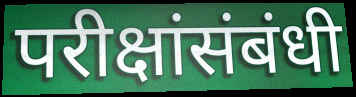
परीक्षांसंबंधी